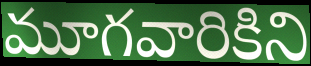
మూగవారికిని